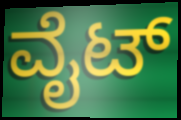
ವೈಟ್